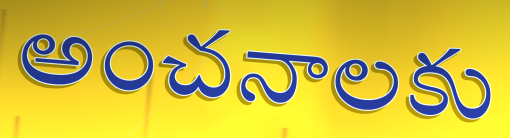
అంచనాలకు